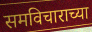
समविचाराच्या